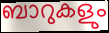
ബാറുകളും